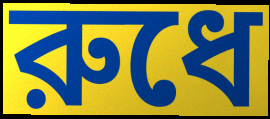
রুধে